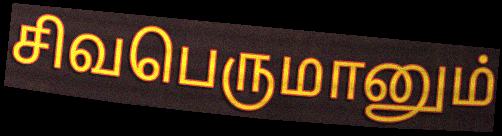
சிவபெருமானும்